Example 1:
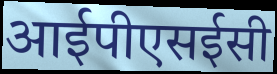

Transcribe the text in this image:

आईपीएसईसी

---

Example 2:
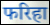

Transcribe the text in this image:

फरिहा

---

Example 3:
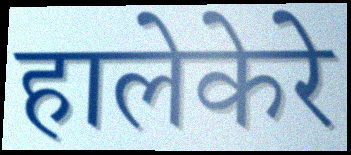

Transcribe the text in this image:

हालेकेरे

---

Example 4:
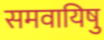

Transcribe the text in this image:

समवायिषु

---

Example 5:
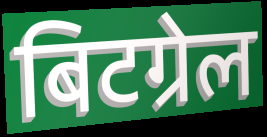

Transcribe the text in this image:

बिटग्रेल